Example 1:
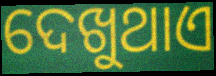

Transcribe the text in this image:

ଦେଖୁଥାଏ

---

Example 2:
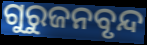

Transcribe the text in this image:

ଗୁରୁଜନବୃନ୍ଦ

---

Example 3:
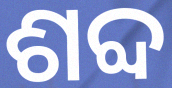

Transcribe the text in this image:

ଶବ୍ଦ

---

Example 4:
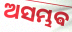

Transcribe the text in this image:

ଅସମ୍ଭଵ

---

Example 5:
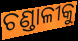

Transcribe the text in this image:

ଚଣ୍ଡାଳୀକୁ